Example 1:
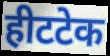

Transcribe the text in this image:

हीटटेक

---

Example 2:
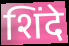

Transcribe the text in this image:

शिंदे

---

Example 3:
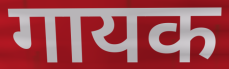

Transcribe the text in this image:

गायक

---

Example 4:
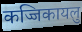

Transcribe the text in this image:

कज्जिकायलु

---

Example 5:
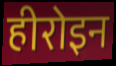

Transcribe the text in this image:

हीरोइन